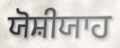
ਯੋਸ਼ੀਯਾਹ